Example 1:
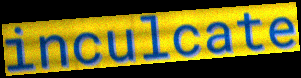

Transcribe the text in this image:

inculcate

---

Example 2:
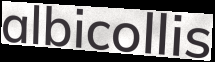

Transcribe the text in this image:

albicollis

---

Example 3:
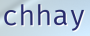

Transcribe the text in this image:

chhay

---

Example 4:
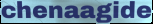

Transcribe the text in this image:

chenaagide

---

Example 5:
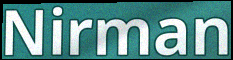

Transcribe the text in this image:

Nirman